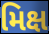
મિક્ષ